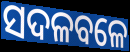
ସଦଳବଳେ